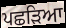
ਪਛੜਿਆ